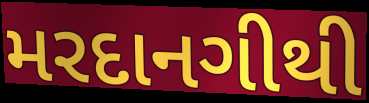
મરદાનગીથી